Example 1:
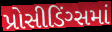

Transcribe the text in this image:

પ્રોસીડિંગ્સમાં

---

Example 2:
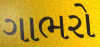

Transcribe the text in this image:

ગાભરો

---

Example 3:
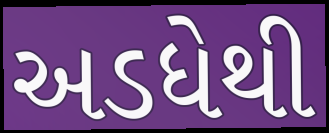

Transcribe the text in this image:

અડધેથી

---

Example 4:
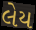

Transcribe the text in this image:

લેય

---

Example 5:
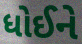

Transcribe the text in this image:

ધોઈને